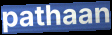
pathaan